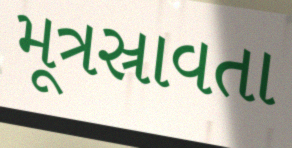
મૂત્રસ્રાવતા